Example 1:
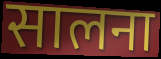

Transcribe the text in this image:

सालना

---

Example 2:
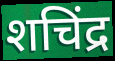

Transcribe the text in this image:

शचिंद्र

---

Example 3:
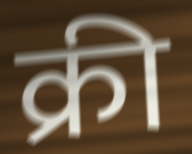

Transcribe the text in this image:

क्री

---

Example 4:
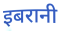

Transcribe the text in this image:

इबरानी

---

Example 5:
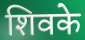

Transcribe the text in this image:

शिवके